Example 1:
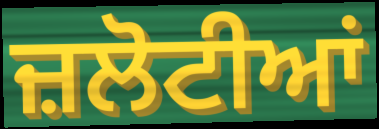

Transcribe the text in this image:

ਜ਼ਲੋਟੀਆਂ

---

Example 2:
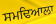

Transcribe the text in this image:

ਸਮਢਿਆਲਾ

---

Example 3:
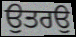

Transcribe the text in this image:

ਉਤਰਉ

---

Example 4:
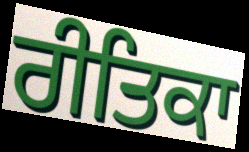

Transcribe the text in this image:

ਰੀਤਿਕਾ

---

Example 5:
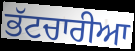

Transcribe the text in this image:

ਭੱਟਚਾਰੀਆ